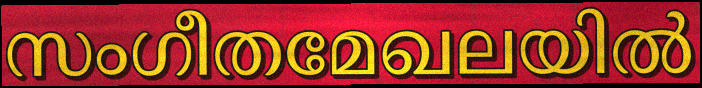
സംഗീതമേഖലയിൽ